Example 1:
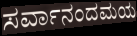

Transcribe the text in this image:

ಸರ್ವಾನಂದಮಯ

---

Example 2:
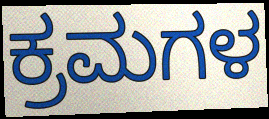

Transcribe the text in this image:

ಕ್ರಮಗಳ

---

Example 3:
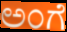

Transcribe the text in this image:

ಅಂಗೆ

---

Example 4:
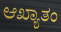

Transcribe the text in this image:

ಆಖ್ಯಾತಂ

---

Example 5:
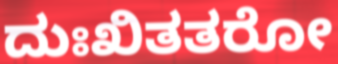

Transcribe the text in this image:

ದುಃಖಿತತರೋ